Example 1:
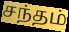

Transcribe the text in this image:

சந்தம்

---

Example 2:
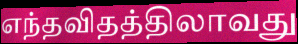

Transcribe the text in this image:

எந்தவிதத்திலாவது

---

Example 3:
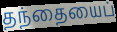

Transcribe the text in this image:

தந்தையைப்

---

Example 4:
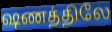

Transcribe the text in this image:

ஷணத்திலே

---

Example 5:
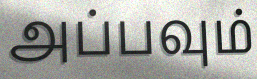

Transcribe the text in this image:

அப்பவும்